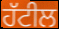
ਹੱਟੀਲ